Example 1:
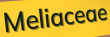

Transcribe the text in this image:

Meliaceae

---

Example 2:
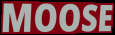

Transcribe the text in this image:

MOOSE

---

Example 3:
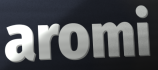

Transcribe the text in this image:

aromi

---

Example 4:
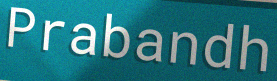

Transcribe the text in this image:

Prabandh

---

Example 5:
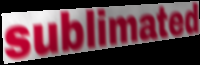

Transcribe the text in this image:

sublimated